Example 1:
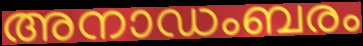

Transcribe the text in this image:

അനാഡംബരം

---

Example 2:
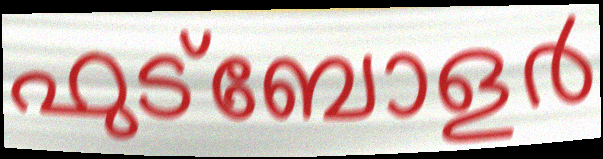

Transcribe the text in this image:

ഫുട്ബോളർ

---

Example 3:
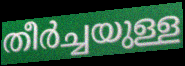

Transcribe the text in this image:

തീർച്ചയുള്ള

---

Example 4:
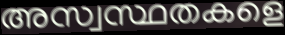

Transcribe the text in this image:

അസ്വസ്ഥതകളെ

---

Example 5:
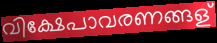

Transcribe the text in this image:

വിക്ഷേപാവരണങ്ങള്